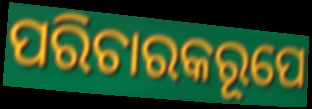
ପରିଚାରକରୂପେ